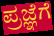
ಪ್ರಜ್ಞೆಗೆ